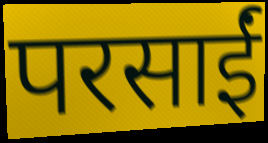
परसाईं